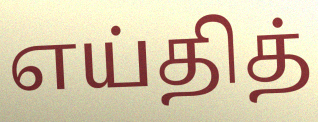
எய்தித்